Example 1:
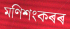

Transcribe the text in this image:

মণিশংকৰৰ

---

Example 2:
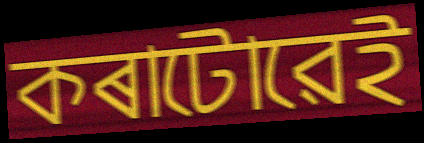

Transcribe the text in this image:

কৰাটোৱেই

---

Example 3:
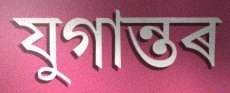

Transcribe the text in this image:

যুগান্তৰ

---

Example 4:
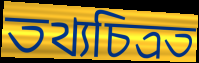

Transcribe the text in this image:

তথ্যচিত্ৰত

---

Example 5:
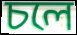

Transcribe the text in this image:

চলে